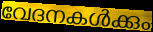
വേദനകൾക്കും